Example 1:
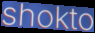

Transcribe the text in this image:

shokto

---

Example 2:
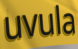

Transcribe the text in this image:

uvula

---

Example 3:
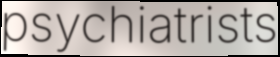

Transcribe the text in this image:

psychiatrists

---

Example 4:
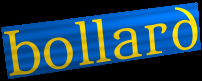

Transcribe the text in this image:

bollard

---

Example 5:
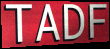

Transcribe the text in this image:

TADF